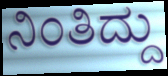
ನಿಂತಿದ್ದು